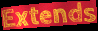
Extends